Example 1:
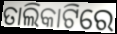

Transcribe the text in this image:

ତାଲିକାଟିରେ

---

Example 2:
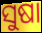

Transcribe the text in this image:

ସୁଷା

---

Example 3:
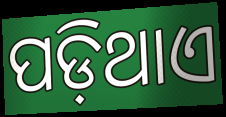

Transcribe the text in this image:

ପଡ଼ିଥାଏ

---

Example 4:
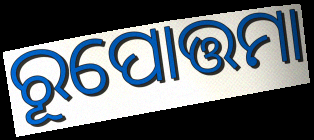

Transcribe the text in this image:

ରୂପୋତ୍ତମା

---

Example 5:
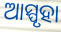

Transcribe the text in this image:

ଆସ୍ପୃହା